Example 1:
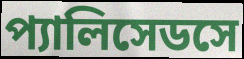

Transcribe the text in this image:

প্যালিসেডসে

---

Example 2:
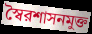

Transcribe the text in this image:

স্বৈরশাসনমুক্ত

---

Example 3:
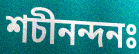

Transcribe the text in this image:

শচীনন্দনঃ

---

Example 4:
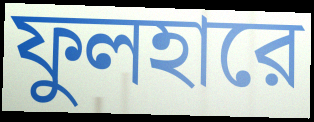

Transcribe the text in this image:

ফুলহারে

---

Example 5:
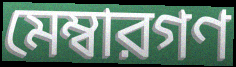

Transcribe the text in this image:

মেম্বারগণ